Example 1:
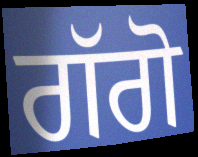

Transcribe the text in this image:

ਗੱਗੋ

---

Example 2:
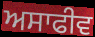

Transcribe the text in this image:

ਅਸਾਫੀਵ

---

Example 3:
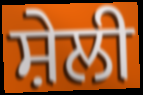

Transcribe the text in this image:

ਸ਼ੇਲੀ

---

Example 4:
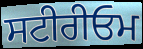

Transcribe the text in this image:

ਸਟੀਰੀਓਮ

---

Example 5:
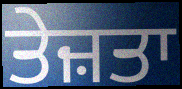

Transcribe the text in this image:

ਤੇਜ਼ਤਾ